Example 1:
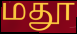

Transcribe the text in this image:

மதூ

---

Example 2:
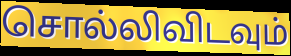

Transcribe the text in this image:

சொல்லிவிடவும்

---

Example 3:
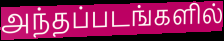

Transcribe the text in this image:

அந்தப்படங்களில்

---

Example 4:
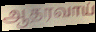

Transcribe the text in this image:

ஆதரவாய்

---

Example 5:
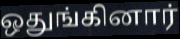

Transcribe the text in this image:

ஒதுங்கினார்